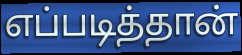
எப்படித்தான்